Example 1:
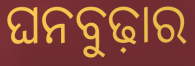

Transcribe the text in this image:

ଘନବୁଢ଼ାର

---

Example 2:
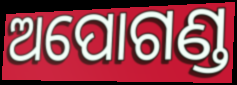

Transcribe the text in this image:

ଅପୋଗଣ୍ଡ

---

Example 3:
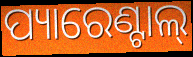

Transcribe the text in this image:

ପ୍ୟାରେଣ୍ଟାଲ୍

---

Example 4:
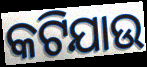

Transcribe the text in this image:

କଟିଯାଉ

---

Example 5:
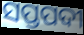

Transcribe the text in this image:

ସପ୍ତପଦୀ